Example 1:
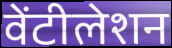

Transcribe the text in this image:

वेंटीलेशन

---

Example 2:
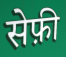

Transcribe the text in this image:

सेफ़ी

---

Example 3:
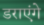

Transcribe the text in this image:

डराएंगे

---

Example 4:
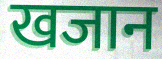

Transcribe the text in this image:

खजान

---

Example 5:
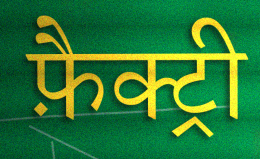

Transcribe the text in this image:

फ़ैक्ट्री